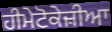
ਹੀਮੇਟੋਕੇਜ਼ੀਆ